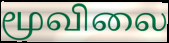
மூவிலை